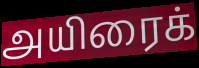
அயிரைக்